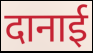
दानाई